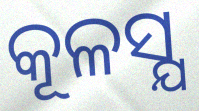
କୂଳସ୍ଯ